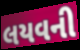
લયવની